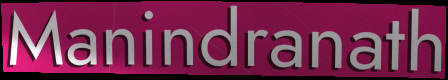
Manindranath